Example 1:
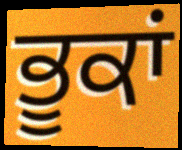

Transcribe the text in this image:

ਭੂਕਾਂ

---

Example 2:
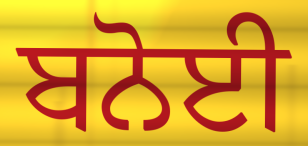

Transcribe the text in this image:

ਬਨੋਈ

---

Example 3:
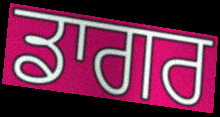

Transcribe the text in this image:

ਡਾਗਰ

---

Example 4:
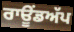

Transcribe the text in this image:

ਰਾਊਂਡਅੱਪ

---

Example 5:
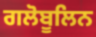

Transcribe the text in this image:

ਗਲੋਬੂਲਿਨ